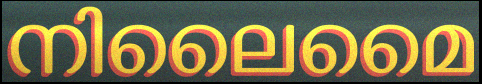
നിലൈമൈ